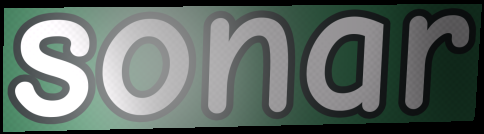
sonar